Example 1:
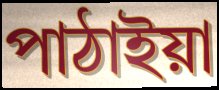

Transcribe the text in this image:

পাঠাইয়া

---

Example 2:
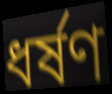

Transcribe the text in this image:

ধর্ষণ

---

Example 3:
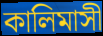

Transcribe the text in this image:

কালিমাসী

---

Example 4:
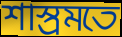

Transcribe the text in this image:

শাস্ত্রমতে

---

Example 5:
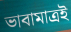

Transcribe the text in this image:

ভাবামাত্রই